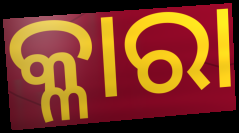
କ୍ଳାରା